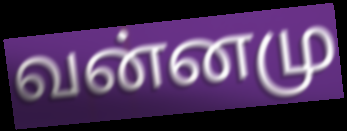
வன்னமு